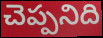
చెప్పనిది